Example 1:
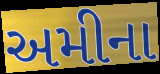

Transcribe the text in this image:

અમીના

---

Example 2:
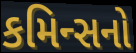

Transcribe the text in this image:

કમિન્સનો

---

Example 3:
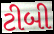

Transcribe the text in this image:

ટીબી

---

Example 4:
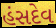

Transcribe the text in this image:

હંસદેવ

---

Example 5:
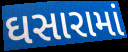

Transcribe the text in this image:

ઘસારામાં